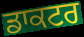
ਡਾਕਟਰ